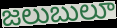
జలుబులూ